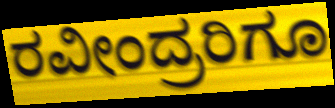
ರವೀಂದ್ರರಿಗೂ